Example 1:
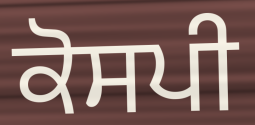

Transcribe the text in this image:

ਕੋਸਪੀ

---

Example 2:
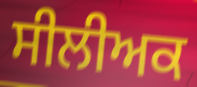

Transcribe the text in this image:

ਸੀਲੀਅਕ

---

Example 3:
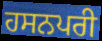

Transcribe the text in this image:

ਹਸਨਪਰੀ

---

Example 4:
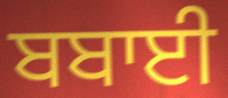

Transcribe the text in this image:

ਬਬਾਈ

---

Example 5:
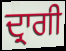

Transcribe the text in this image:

ਦ੍ਰਾਗੀ